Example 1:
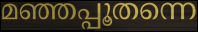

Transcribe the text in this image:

മഞ്ഞപ്പൂതന്നെ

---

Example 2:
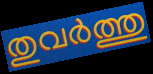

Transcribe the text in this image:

തുവർത്തു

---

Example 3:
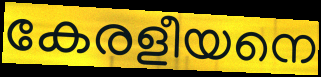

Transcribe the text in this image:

കേരളീയനെ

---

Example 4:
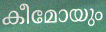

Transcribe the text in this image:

കീമോയും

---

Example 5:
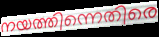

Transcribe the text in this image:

നയത്തിന്നെതിരെ